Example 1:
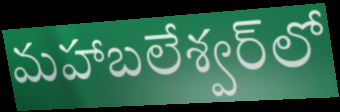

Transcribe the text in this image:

మహాబలేశ్వర్‌లో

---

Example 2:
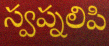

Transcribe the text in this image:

స్వప్నలిపి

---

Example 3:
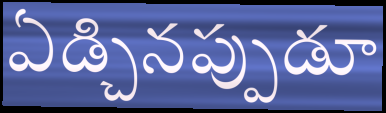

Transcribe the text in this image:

ఏడ్చినప్పుడూ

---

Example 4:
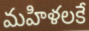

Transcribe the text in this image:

మహిళలకే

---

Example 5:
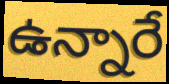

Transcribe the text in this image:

ఉన్నారే